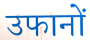
उफानों